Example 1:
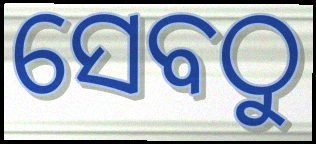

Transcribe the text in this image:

ସେବଠୁ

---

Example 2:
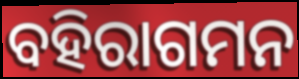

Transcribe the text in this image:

ବହିରାଗମନ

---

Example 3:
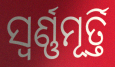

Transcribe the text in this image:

ସ୍ଵର୍ଣ୍ଣମୂର୍ତ୍ତି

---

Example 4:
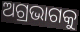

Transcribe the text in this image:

ଅଗ୍ରଭାଗକୁ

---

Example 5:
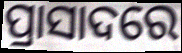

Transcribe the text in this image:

ପ୍ରାସାଦରେ